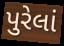
પુરેલાં